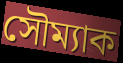
সৌম্যাক